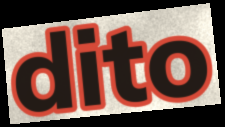
dito